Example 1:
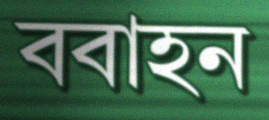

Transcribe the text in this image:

ববাহন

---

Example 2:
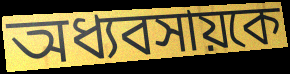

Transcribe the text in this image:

অধ্যবসায়কে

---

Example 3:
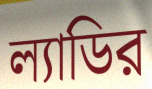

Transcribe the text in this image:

ল্যাডির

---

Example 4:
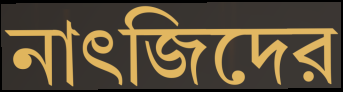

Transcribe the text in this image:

নাৎজিদের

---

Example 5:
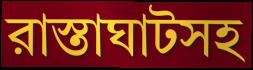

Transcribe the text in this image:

রাস্তাঘাটসহ